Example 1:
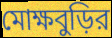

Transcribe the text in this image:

মোক্ষবুড়ির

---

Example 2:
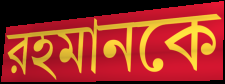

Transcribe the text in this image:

রহমানকে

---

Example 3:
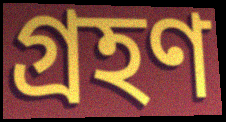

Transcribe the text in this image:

গ্রহণ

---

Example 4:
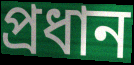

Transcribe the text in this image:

প্রধান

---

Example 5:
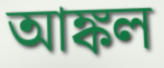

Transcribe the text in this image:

আঙ্কল